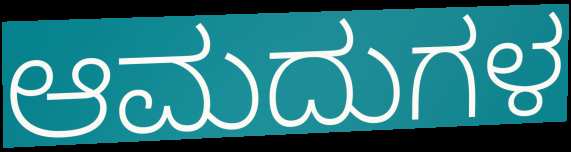
ಆಮದುಗಳ